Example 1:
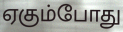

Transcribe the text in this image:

ஏகும்போது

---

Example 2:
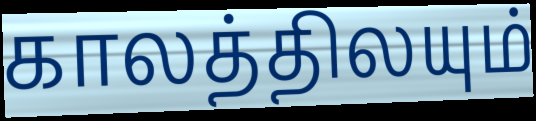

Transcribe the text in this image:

காலத்திலயும்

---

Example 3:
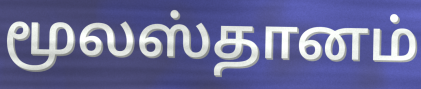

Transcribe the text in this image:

மூலஸ்தானம்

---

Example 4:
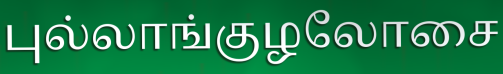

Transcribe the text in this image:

புல்லாங்குழலோசை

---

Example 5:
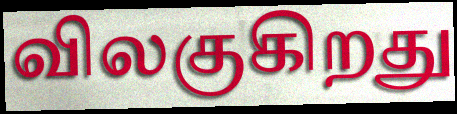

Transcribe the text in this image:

விலகுகிறது